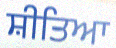
ਸ਼ੀਤਿਆ